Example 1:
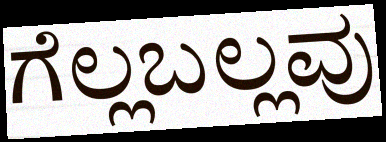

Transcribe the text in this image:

ಗೆಲ್ಲಬಲ್ಲವು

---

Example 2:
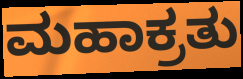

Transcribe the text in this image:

ಮಹಾಕ್ರತು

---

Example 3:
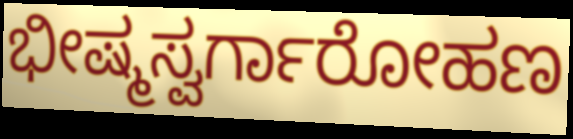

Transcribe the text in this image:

ಭೀಷ್ಮಸ್ವರ್ಗಾರೋಹಣ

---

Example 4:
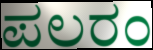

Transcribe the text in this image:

ಪಲರಂ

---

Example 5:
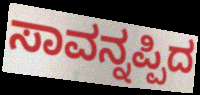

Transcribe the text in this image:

ಸಾವನ್ನಪ್ಪಿದ